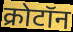
क्रोटॉन